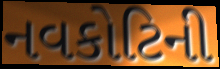
નવકોટિની